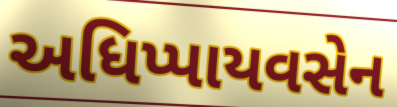
અધિપ્પાયવસેન